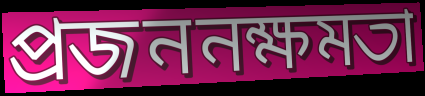
প্রজননক্ষমতা